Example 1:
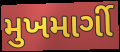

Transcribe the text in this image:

મુખમાર્ગી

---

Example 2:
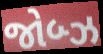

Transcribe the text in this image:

જોબ્ઝ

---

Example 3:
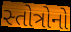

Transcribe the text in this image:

સ્તોત્રોનો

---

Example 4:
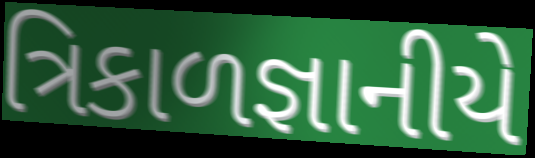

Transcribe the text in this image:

ત્રિકાળજ્ઞાનીયે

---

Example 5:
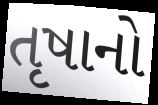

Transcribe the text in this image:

તૃષાનો